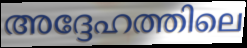
അദ്ദേഹത്തിലെ